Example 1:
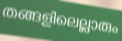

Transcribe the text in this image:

തങ്ങളിലെല്ലാരും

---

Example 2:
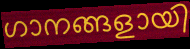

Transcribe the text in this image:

ഗാനങ്ങളായി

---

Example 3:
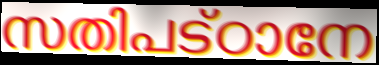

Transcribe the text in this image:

സതിപട്ഠാനേ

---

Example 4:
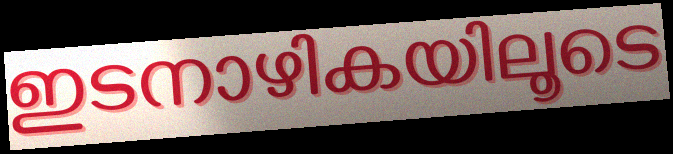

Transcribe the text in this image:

ഇടനാഴികയിലൂടെ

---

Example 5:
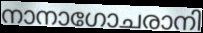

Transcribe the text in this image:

നാനാഗോചരാനി